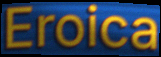
Eroica